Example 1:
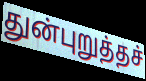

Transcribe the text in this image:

துன்புறுத்தச்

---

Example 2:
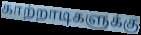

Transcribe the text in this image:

காற்றாடிகளுக்கு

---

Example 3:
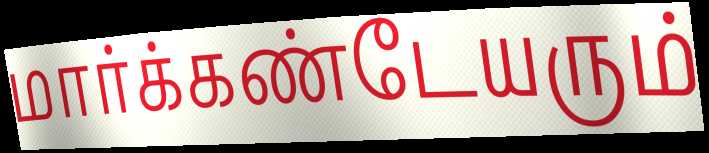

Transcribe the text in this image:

மார்க்கண்டேயரும்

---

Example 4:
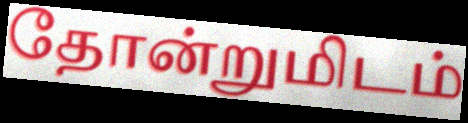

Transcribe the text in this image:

தோன்றுமிடம்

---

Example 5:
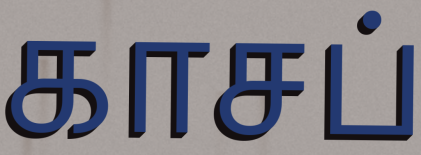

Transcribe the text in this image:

காசப்